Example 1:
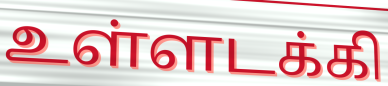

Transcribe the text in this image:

உள்ளடக்கி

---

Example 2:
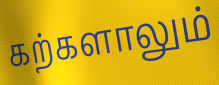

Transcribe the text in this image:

கற்களாலும்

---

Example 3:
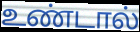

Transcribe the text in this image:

உண்டால்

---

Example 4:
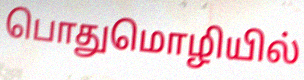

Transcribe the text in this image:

பொதுமொழியில்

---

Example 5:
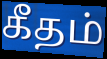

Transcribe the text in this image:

கீதம்